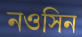
নওসিন